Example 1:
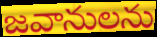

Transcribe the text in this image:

జవానులను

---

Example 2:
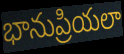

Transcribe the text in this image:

భానుప్రియలా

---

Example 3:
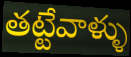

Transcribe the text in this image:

తట్టేవాళ్ళు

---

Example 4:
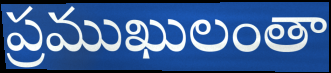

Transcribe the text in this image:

ప్రముఖులంతా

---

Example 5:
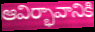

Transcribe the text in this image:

ఆవిర్భావానికి